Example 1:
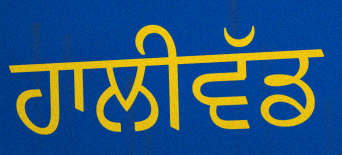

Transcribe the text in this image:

ਹਾਲੀਵੱਡ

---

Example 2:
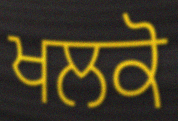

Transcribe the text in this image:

ਖਲਕੋ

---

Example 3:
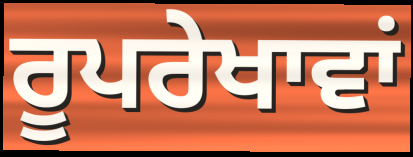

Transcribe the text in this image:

ਰੂਪਰੇਖਾਵਾਂ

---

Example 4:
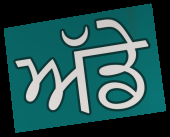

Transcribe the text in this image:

ਅੱਡੇ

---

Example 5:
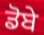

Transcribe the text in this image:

ਡੋਬੇ